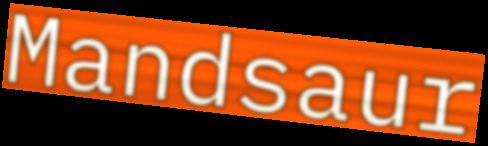
Mandsaur